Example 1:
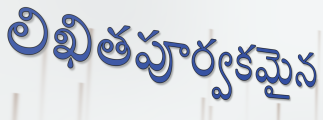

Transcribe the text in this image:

లిఖితపూర్వకమైన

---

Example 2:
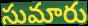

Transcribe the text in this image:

సుమారు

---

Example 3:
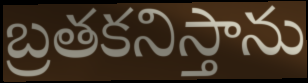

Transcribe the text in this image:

బ్రతకనిస్తాను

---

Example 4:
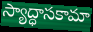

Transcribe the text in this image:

స్యాద్ధాసకామా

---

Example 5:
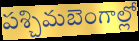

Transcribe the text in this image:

పశ్చిమబెంగాల్లో